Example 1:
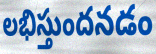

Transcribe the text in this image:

లభిస్తుందనడం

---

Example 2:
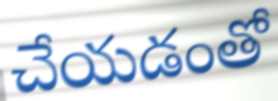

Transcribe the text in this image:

చేయడంతో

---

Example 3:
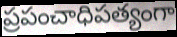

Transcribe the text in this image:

ప్రపంచాధిపత్యంగా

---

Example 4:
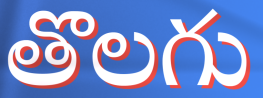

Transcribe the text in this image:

తొలగు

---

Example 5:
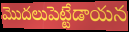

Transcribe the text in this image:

మొదలుపెట్టేడాయన